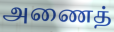
அணைத்